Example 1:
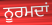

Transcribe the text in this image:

ਨੂਰਮਦਾਂ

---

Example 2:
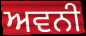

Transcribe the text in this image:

ਅਵਨੀ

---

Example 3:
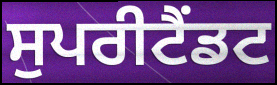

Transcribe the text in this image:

ਸੁਪਰੀਟੈਂਡਟ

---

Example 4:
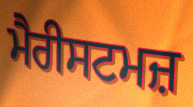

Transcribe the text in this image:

ਮੈਰੀਸਟਮਜ਼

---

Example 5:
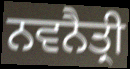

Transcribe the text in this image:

ਨਵਨੈਤ੍ਰੀ